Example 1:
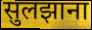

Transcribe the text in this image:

सुलझाना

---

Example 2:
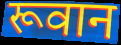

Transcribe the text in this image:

रूवान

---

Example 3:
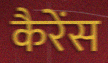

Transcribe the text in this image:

कैरेंस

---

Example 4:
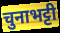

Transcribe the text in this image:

चुनाभट्टी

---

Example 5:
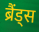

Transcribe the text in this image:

ब्रैंड्स